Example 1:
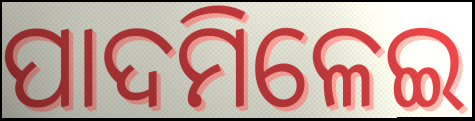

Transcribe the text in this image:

ପାଦମିଳେଇ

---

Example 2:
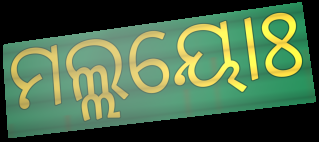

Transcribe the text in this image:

ମଲ୍ଲୟୋଃ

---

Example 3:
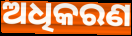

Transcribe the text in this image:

ଅଧିକରଣ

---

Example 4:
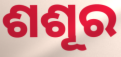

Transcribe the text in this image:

ଶଶୂର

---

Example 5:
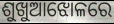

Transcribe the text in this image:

ଶୁଖୁଆଝୋଳରେ